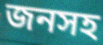
জনসহ